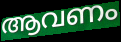
ആവണം